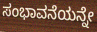
ಸಂಭಾವನೆಯನ್ನೇ